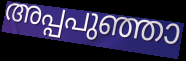
അപ്പപുഞ്ഞാ